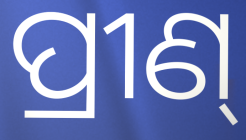
ପ୍ରୀଣ୍